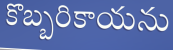
కొబ్బరికాయను